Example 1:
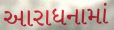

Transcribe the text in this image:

આરાધનામાં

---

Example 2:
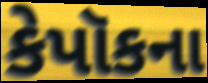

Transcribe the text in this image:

કેપૉકના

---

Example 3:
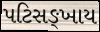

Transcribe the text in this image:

પટિસઙ્ખાય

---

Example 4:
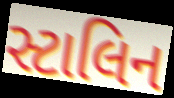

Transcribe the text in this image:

સ્ટાલિન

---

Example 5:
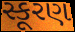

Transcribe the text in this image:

સ્કૂરણ